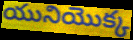
యునియొక్క